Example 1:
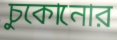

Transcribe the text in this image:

চুকোনোর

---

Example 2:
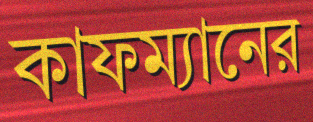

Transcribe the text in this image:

কাফম্যানের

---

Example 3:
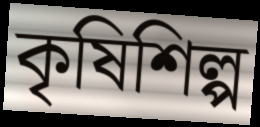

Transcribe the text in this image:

কৃষিশিল্প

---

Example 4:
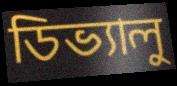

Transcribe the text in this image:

ডিভ্যালু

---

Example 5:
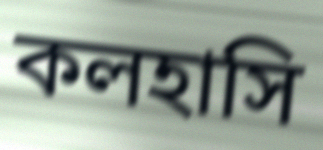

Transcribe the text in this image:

কলহাসি